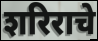
शरिराचे